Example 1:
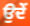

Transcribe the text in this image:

ਉਦੇਂ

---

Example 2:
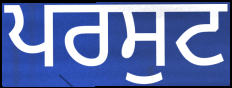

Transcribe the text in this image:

ਪਰਸੁਟ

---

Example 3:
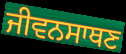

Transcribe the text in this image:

ਜੀਵਨਸਾਥਣ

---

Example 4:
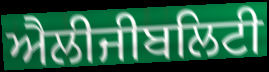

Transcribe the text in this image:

ਐਲੀਜੀਬਲਿਟੀ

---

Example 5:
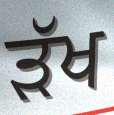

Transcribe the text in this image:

ੜੱਖ